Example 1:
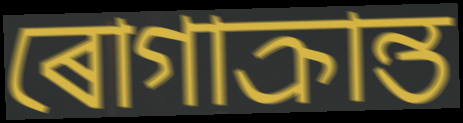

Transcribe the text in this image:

ৰোগাক্ৰান্ত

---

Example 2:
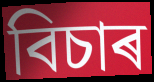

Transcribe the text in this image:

বিচাৰ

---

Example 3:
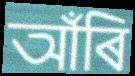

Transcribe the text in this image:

আঁৰি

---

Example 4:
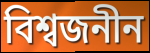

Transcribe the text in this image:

বিশ্বজনীন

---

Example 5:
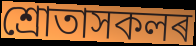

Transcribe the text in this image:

শ্ৰোতাসকলৰ